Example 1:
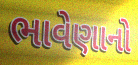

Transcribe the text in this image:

ભાવેણાનો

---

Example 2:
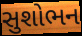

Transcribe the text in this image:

સુશોભન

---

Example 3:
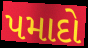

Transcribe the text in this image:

પમાદો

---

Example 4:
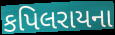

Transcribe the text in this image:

કપિલરાયના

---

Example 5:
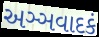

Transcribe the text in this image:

અઞ્ઞવાદકં